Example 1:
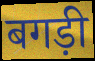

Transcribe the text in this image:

बगड़ी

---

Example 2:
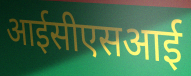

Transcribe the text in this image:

आईसीएसआई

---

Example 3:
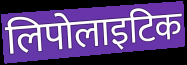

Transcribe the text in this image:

लिपोलाइटिक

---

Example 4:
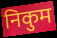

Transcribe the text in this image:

निकुम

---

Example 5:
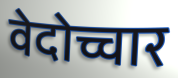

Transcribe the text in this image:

वेदोच्चार